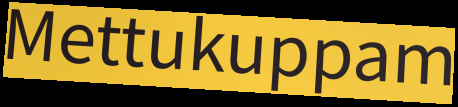
Mettukuppam